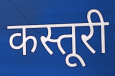
कस्तूरी